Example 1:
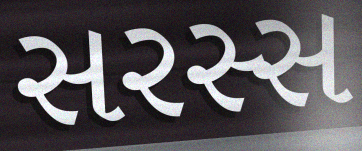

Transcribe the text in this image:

સરસ્સ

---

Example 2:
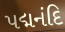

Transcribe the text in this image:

પદ્મનંદિ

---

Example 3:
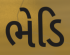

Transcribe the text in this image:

ભેડિ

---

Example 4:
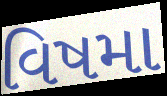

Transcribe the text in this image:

વિષમા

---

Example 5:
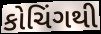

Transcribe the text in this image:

કોચિંગથી